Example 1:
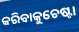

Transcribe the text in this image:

କରିବାକୁଚେଷ୍ଟା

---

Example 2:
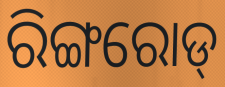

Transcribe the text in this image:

ରିଙ୍ଗରୋଡ୍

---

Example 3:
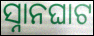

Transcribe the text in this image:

ସ୍ନାନଘାଟ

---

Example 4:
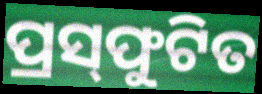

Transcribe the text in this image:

ପ୍ରସ୍‌ଫୁଟିତ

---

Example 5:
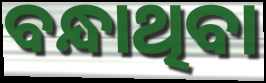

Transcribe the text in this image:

ବନ୍ଧାଥିବା